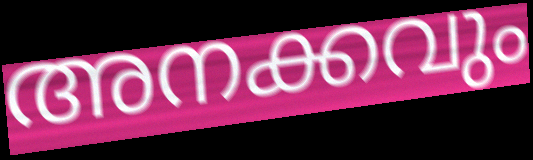
അനക്കവും